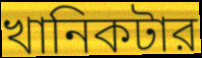
খানিকটার